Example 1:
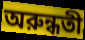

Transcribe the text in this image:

অরুন্ধতী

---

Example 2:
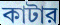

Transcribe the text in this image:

কাটার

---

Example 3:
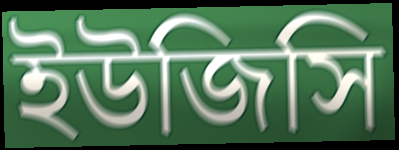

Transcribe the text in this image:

ইউজিসি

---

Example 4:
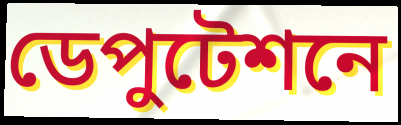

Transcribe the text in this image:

ডেপুটেশনে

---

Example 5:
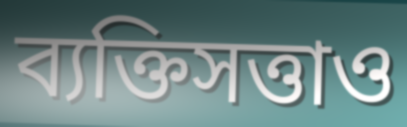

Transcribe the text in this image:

ব্যক্তিসত্তাও